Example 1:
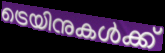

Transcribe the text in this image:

ട്രെയിനുകൾക്ക്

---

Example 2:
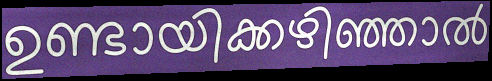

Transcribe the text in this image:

ഉണ്ടായിക്കഴിഞ്ഞാൽ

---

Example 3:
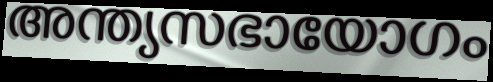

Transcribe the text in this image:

അന്ത്യസഭായോഗം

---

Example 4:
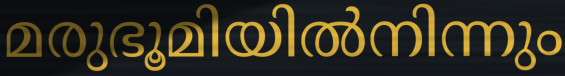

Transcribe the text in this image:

മരുഭൂമിയിൽനിന്നും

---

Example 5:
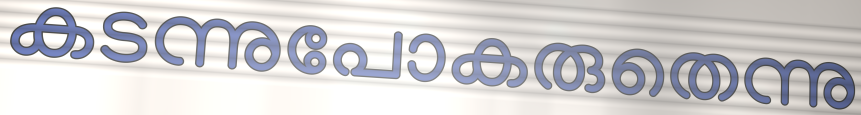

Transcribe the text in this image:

കടന്നുപോകരുതെന്നു